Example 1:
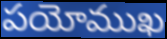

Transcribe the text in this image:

పయోముఖ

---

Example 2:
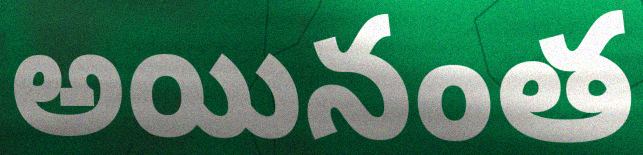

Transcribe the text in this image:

అయినంత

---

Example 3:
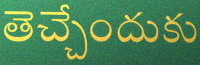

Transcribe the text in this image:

తెచ్చేందుకు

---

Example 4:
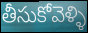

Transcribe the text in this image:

తీసుకోవెళ్ళి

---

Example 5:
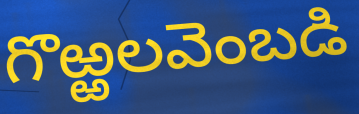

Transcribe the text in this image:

గొఱ్ఱలవెంబడి